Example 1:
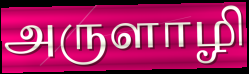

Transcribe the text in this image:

அருளாழி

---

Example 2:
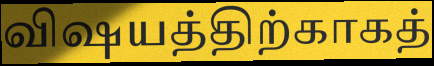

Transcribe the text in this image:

விஷயத்திற்காகத்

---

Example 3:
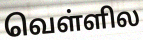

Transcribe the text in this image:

வெள்ளில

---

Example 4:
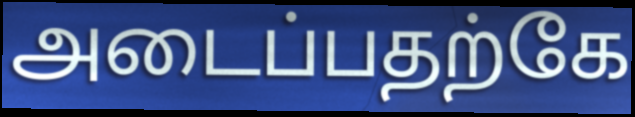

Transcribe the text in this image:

அடைப்பதற்கே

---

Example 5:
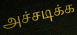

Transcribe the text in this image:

அச்சடிக்க